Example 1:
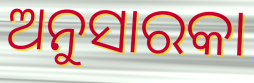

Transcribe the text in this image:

ଅନୁସାରକା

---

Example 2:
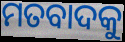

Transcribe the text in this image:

ମତବାଦକୁ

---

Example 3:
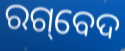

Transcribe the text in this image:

ରଗ୍‌ବେଦ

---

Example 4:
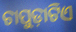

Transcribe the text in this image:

ଚାପୁଡ଼ାଟିଏ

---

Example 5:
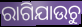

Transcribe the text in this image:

ରାଗିଯାଉଚୁ